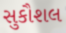
સુકૌશલ